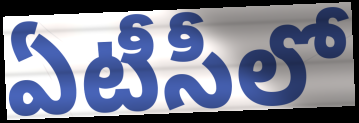
ఏటీసీలో